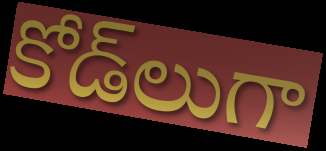
కోడ్‌లుగా